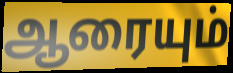
ஆரையும்